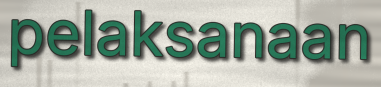
pelaksanaan